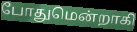
போதுமென்றாகி